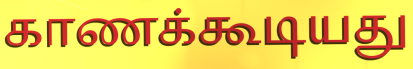
காணக்கூடியது